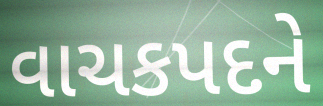
વાચકપદને